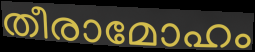
തീരാമോഹം